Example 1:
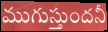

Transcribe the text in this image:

ముగుస్తుందనీ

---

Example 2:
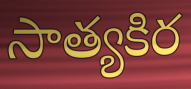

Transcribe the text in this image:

సాత్యకిర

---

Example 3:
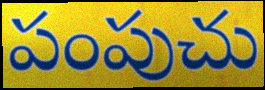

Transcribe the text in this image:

పంపుచు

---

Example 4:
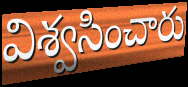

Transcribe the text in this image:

విశ్వసించారు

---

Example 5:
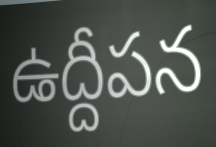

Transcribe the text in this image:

ఉద్దీపన